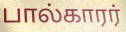
பால்காரர்